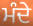
ਮੰਦੇ